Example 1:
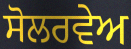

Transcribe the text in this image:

ਸੋਲਰਵੇਅ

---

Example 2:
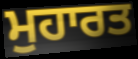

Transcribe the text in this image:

ਮੁਹਾਰਤ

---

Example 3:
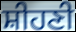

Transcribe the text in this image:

ਸ਼ੀਹਣੀ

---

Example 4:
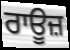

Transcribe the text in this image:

ਰਾਊਜ਼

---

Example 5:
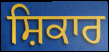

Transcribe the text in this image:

ਸ਼ਿਕਾਰ